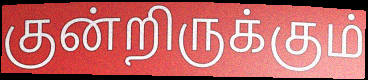
குன்றிருக்கும்